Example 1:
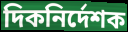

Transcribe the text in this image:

দিকনির্দেশক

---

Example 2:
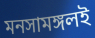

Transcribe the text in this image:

মনসামঙ্গলই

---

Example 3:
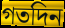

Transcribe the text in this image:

গতদিন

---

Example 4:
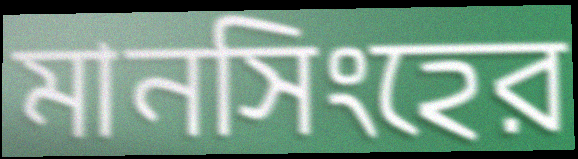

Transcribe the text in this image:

মানসিংহের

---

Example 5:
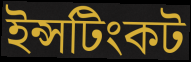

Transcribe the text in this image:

ইন্সটিংকট